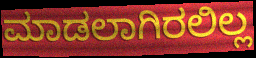
ಮಾಡಲಾಗಿರಲಿಲ್ಲ